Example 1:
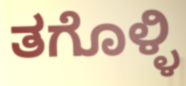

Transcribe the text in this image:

ತಗೊಳ್ಳಿ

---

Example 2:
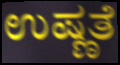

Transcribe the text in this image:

ಉಷ್ಣತೆ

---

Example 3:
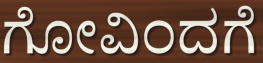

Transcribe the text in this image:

ಗೋವಿಂದಗೆ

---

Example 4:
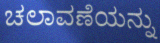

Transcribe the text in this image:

ಚಲಾವಣೆಯನ್ನು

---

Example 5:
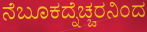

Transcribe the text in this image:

ನೆಬೂಕದ್ನೆಚ್ಚರನಿಂದ